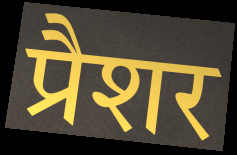
प्रैशर